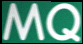
MQ